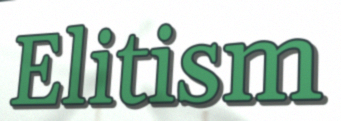
Elitism